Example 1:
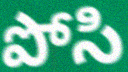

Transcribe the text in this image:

పోసి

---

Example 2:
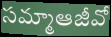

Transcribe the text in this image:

సమ్మాఆజీవో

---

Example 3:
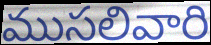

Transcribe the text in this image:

ముసలివారి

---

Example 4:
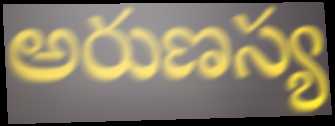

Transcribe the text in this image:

అరుణస్య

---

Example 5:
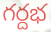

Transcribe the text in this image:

గర్దభ